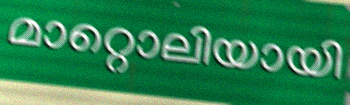
മാറ്റൊലിയായി